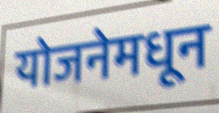
योजनेमधून